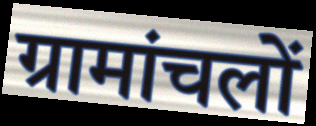
ग्रामांचलों